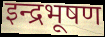
इन्द्रभूषण